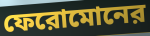
ফেরোমোনের